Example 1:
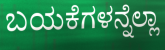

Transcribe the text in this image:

ಬಯಕೆಗಳನ್ನೆಲ್ಲಾ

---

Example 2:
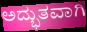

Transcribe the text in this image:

ಅದ್ಭುತವಾಗಿ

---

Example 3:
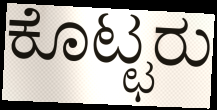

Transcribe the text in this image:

ಕೊಟ್ಟರು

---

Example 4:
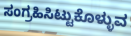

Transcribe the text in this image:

ಸಂಗ್ರಹಿಸಿಟ್ಟುಕೊಳ್ಳುವ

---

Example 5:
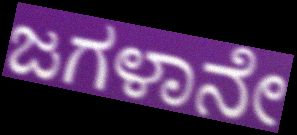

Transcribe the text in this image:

ಜಗಳಾನೇ